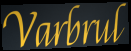
Varbrul